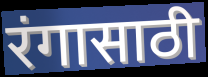
रंगासाठी